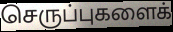
செருப்புகளைக்